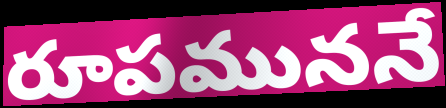
రూపముననే